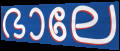
ഭാലേ